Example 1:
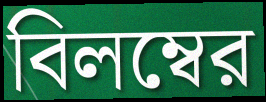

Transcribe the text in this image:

বিলম্বের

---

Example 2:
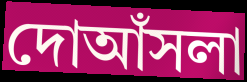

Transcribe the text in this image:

দোআঁসলা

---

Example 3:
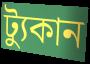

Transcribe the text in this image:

ট্যুকান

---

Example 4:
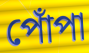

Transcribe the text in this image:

পোঁপা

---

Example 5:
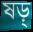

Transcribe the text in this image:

ষড়্